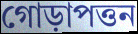
গোড়াপত্তন